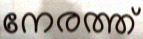
നേരത്ത്